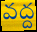
వద్ద